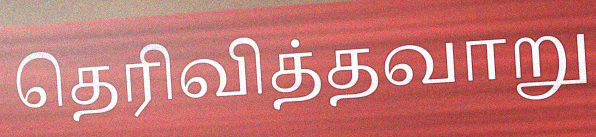
தெரிவித்தவாறு